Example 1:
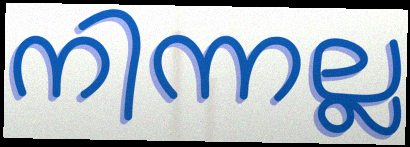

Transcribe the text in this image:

നിന്നല്ല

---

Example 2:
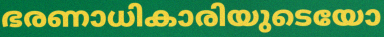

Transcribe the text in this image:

ഭരണാധികാരിയുടെയോ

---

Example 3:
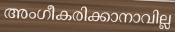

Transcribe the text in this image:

അംഗീകരിക്കാനാവില്ല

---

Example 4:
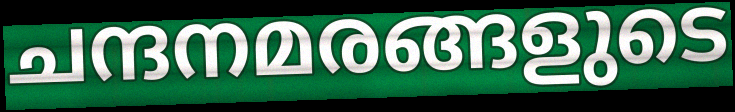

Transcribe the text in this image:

ചന്ദനമരങ്ങളുടെ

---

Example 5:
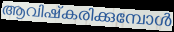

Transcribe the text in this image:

ആവിഷ്‌കരിക്കുമ്പോൾ